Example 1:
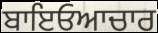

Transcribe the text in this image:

ਬਾਇਓਆਚਾਰ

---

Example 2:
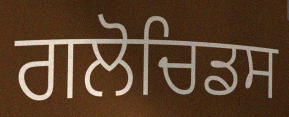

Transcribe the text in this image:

ਗਲੋਚਿਡਸ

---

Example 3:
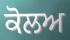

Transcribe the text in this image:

ਕੋਲਅ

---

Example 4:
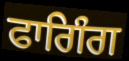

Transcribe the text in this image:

ਫਾਗਿੰਗ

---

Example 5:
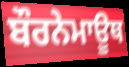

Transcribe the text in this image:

ਬੌਰਨੇਮਾਊਥ